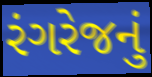
રંગરેજનું